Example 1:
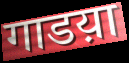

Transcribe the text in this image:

गाडय़ा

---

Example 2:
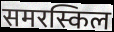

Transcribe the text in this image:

समरस्किल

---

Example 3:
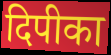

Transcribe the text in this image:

दिपीका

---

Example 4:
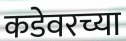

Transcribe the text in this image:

कडेवरच्या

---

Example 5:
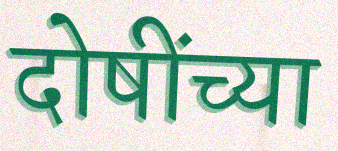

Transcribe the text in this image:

दोषींच्या